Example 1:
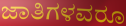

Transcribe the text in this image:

ಜಾತಿಗಳವರೂ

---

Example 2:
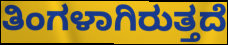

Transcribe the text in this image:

ತಿಂಗಳಾಗಿರುತ್ತದೆ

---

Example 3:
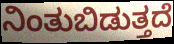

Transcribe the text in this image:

ನಿಂತುಬಿಡುತ್ತದೆ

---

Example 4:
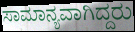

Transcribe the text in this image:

ಸಾಮಾನ್ಯವಾಗಿದ್ದರು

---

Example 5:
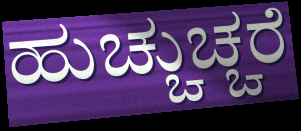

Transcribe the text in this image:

ಹುಚ್ಚುಚ್ಚರೆ